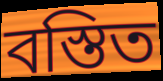
বস্তিত